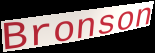
Bronson